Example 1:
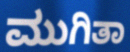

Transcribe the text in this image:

ಮುಗಿತಾ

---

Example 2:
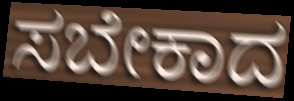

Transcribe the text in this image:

ಸಬೇಕಾದ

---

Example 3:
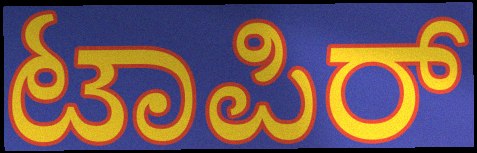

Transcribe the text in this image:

ಟಾಪಿರ್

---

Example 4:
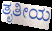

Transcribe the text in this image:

ತೃತೀಯ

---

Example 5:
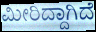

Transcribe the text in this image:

ಮೀರಿದ್ದಾಗಿದೆ